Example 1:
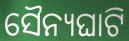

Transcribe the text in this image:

ସୈନ୍ୟଘାଟି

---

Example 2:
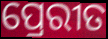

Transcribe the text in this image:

ପ୍ରେରୀତ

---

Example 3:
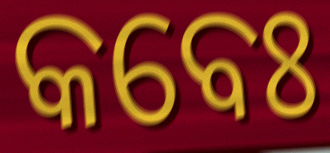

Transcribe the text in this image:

କବେଃ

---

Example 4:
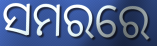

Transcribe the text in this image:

ସମରରେ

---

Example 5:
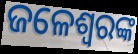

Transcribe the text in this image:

ଜଳେଶ୍ଵରଙ୍କ